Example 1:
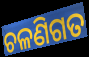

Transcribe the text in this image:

ଚଳଣିଗତ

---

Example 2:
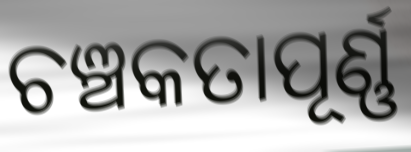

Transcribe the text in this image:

ଚଞ୍ଚକତାପୂର୍ଣ୍ଣ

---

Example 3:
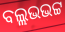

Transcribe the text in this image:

ବଲ୍ଲଭଭଟ୍ଟ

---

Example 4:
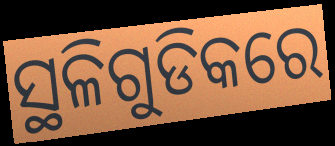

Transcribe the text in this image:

ସ୍ଥଳିଗୁଡିକରେ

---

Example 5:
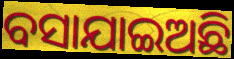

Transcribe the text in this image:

ବସାଯାଇଅଛି